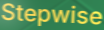
Stepwise